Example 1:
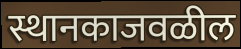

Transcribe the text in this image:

स्थानकाजवळील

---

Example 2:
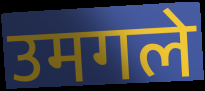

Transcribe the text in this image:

उमगले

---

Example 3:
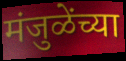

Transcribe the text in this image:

मंजुळेंच्या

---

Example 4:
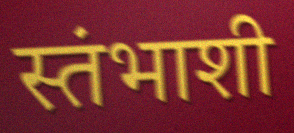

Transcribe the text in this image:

स्तंभाशी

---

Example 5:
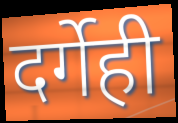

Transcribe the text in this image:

दर्गेही